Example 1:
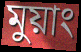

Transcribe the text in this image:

মুয়াং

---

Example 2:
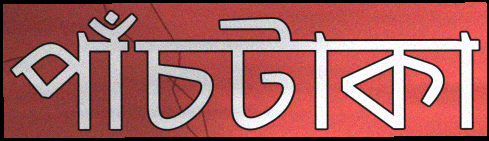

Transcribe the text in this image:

পাঁচটাকা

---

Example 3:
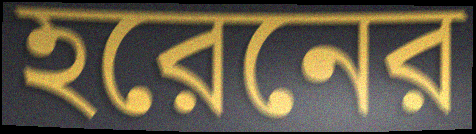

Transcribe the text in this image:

হরেনের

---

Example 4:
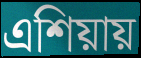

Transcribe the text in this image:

এশিয়ায়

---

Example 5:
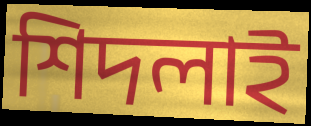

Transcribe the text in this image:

শিদলাই